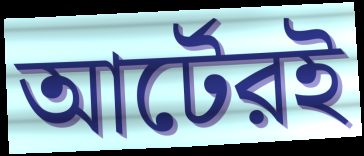
আর্টেরই